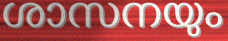
ശാസനയും